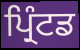
ਪ੍ਰਿੰਟਡ